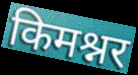
किमश्नर